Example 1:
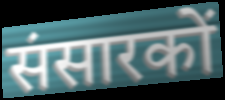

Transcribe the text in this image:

संसारकों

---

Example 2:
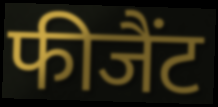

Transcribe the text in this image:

फीजैंट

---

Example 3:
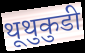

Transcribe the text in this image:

थूथुकुडी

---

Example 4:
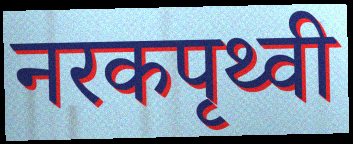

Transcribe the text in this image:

नरकपृथ्वी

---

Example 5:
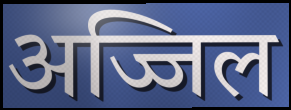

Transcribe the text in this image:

अज्जिल